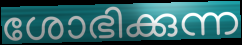
ശോഭിക്കുന്ന